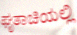
ಘೃತಾಚಿಯಲ್ಲಿ